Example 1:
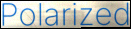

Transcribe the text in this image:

Polarized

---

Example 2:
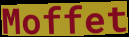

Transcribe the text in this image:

Moffet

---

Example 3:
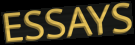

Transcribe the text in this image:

ESSAYS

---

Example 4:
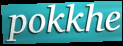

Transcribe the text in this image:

pokkhe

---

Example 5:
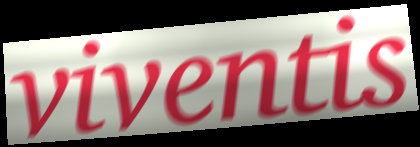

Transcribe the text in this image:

viventis